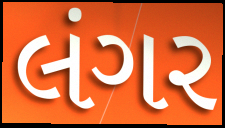
લંગર